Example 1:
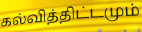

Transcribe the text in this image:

கல்வித்திட்டமும்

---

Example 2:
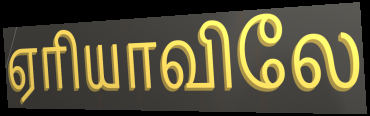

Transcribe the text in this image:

ஏரியாவிலே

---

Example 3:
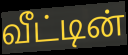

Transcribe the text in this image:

வீட்டின்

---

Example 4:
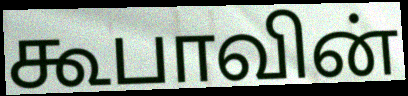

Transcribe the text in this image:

கூபாவின்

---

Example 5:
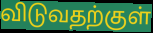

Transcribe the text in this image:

விடுவதற்குள்